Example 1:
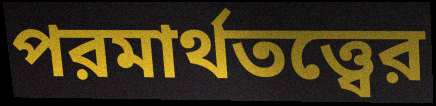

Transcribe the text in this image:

পরমার্থতত্ত্বের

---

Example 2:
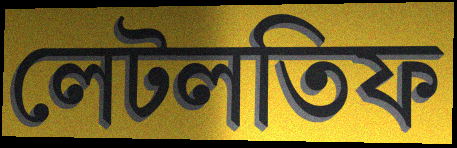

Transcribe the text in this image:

লেটলতিফ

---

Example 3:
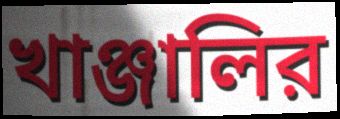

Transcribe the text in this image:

খাঞ্জালির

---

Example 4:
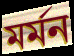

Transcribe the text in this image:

মর্মন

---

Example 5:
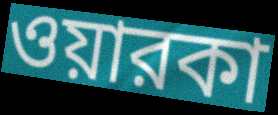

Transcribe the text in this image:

ওয়ারকা